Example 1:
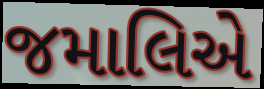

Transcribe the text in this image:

જમાલિએ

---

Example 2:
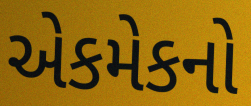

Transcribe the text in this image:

એકમેકનો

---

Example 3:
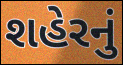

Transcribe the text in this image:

શહેરનું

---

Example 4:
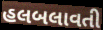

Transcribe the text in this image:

હલબલાવતી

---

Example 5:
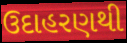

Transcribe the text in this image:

ઉદાહરણથી